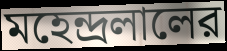
মহেন্দ্রলালের